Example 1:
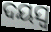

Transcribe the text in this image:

ଦୟସ୍ଵ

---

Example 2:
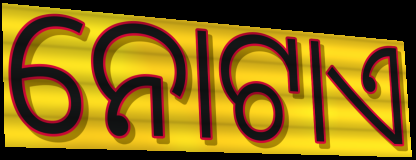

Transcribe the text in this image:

ନୋଟାଏ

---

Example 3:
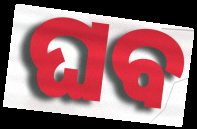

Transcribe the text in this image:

ଘବ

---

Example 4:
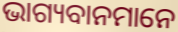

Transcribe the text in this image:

ଭାଗ୍ୟବାନମାନେ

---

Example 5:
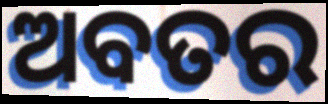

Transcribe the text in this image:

ଅବତର